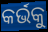
କର୍ଭକୁ